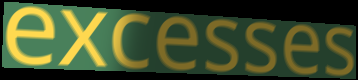
excesses